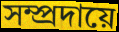
সম্প্ৰদায়ে